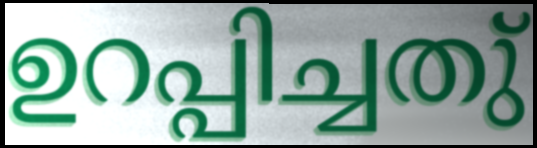
ഉറപ്പിച്ചതു്